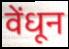
वेंधून